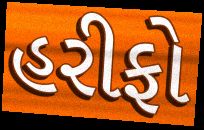
હરીફો